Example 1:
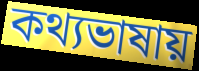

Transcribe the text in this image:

কথ্যভাষায়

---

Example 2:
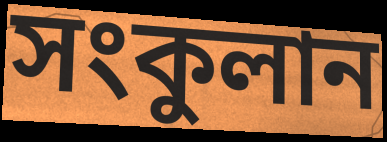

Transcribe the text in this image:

সংকুলান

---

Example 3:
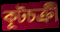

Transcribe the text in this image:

কূটচক্রী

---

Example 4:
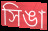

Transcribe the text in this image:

সিঙা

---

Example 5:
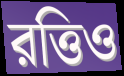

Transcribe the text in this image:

রত্তিও